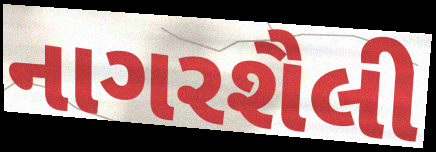
નાગરશૈલી